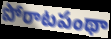
పోరాటపంథా